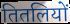
तितलियों